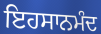
ਇਹਸਾਨਮੰਦ